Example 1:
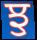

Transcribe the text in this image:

ਝੁ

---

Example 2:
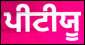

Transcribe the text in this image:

ਪੀਟੀਯੂ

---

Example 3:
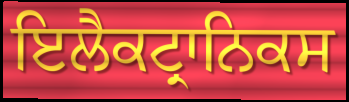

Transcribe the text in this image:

ਇਲੈਕਟ੍ਰਾਨਿਕਸ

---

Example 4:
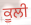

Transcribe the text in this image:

ਕੂਲੀ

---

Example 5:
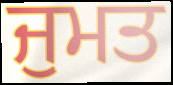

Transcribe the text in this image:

ਜੁਮਤ